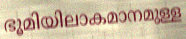
ഭൂമിയിലാകമാനമുള്ള